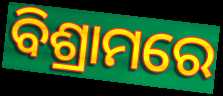
ବିଶ୍ରାମରେ